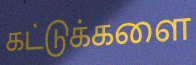
கட்டுக்களை